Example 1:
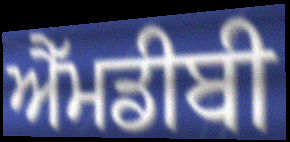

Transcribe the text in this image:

ਐੱਮਡੀਬੀ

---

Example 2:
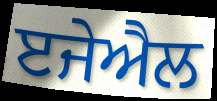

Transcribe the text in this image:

ੲਜੇਐਲ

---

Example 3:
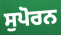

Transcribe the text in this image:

ਸੁਪੋਰਨ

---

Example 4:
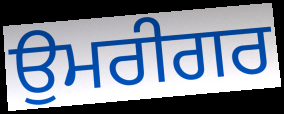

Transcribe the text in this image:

ਉਮਰੀਗਰ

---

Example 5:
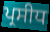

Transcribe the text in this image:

ਪ੍ਰਸੀਧ